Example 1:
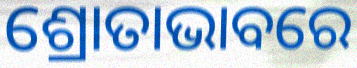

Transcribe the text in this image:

ଶ୍ରୋତାଭାବରେ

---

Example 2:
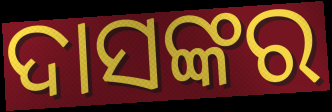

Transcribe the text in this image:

ଦାସଙ୍କର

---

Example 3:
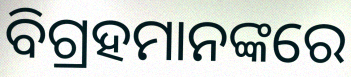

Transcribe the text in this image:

ବିଗ୍ରହମାନଙ୍କରେ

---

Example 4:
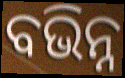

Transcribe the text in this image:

ବଭିନ୍ନ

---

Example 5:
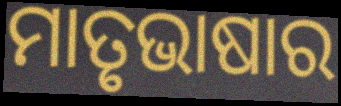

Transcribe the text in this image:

ମାତୃଭାଷାର